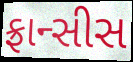
ફ્રાન્સીસ